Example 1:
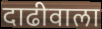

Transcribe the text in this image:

दाढीवाला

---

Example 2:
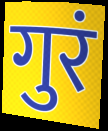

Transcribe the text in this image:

गुरं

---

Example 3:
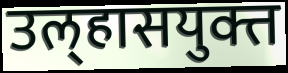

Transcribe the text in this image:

उल्हासयुक्त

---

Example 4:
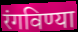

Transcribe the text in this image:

रंगविण्या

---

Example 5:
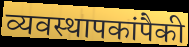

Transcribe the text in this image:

व्यवस्थापकांपैकी